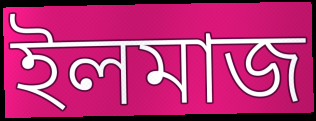
ইলমাজ